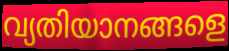
വ്യതിയാനങ്ങളെ